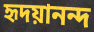
হৃদয়ানন্দ